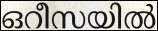
ഒറീസയിൽ